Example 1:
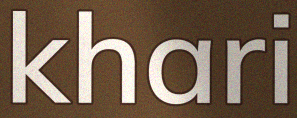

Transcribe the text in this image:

khari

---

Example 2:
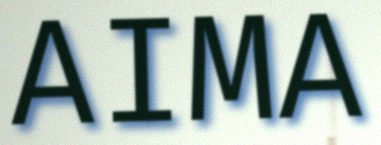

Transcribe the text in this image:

AIMA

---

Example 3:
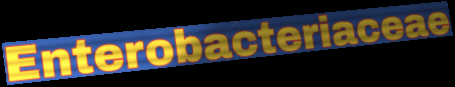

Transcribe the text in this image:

Enterobacteriaceae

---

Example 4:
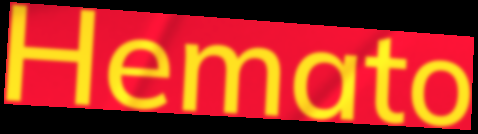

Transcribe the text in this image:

Hemato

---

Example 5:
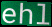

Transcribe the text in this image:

ehl